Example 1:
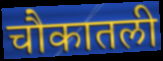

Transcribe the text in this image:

चौकातली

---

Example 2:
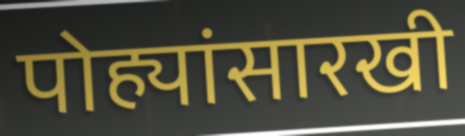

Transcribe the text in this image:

पोह्यांसारखी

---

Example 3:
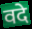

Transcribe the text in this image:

वदे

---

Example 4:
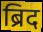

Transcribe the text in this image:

ब्रिद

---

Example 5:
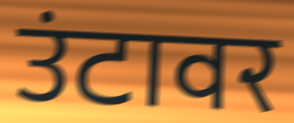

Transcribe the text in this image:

उंटावर